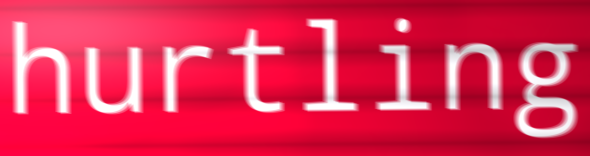
hurtling